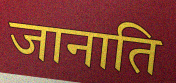
जानाति